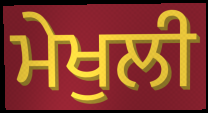
ਮੇਖੁਲੀ